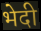
भेदी